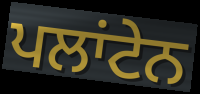
ਪਲਾਂਟੇਨ